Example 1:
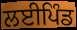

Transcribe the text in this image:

ਲਈਪਿੰਡ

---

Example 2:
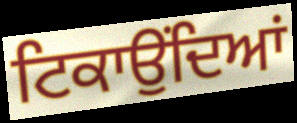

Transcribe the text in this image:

ਟਿਕਾਉਂਦਿਆਂ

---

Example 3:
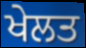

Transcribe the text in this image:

ਖੇਲਤ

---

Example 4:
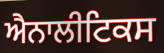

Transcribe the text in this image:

ਐਨਾਲੀਟਿਕਸ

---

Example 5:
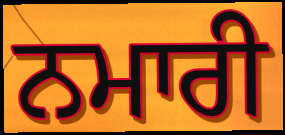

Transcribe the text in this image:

ਨਮਾਰੀ